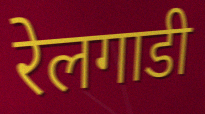
रेलगाडी